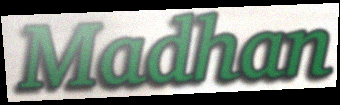
Madhan